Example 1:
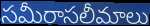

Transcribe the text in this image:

సమీరాసలీమాలు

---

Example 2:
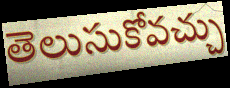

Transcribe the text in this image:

తెలుసుకోవచ్చు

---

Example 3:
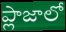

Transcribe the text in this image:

ప్లాజాలో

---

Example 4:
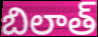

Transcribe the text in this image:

బిలాత్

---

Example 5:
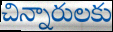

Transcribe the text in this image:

చిన్నారులకు